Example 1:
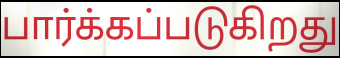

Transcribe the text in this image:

பார்க்கப்படுகிறது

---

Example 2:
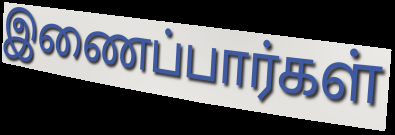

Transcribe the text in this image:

இணைப்பார்கள்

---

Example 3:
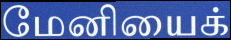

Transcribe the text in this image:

மேனியைக்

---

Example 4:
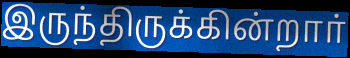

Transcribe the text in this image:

இருந்திருக்கின்றார்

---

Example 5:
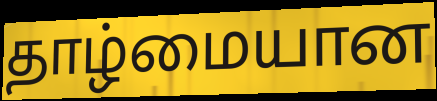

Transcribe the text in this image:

தாழ்மையான